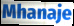
Mhanaje